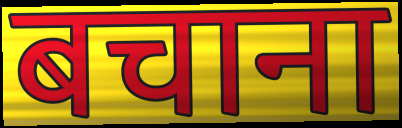
बचाना